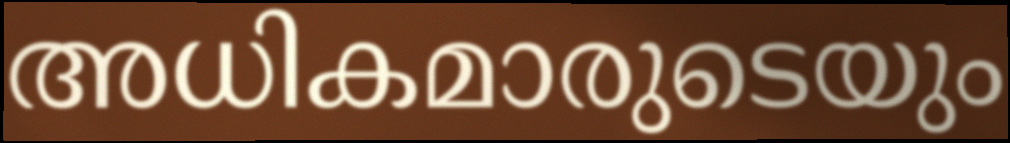
അധികമാരുടെയും